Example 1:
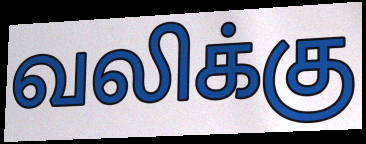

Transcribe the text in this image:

வலிக்கு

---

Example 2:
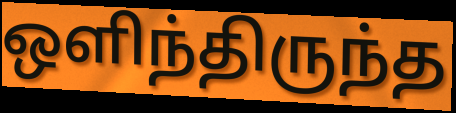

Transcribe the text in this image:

ஒளிந்திருந்த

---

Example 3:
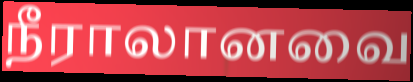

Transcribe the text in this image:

நீராலானவை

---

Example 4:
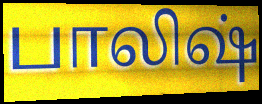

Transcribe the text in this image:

பாலிஷ்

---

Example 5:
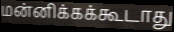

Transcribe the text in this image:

மன்னிக்கக்கூடாது